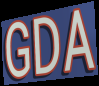
GDA